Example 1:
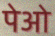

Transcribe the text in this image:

पेओ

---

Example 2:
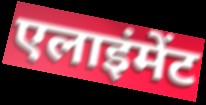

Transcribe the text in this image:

एलाइंमेंट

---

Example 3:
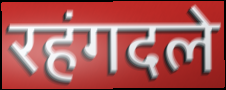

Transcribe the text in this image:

रहंगदले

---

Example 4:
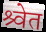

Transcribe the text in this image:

श्र्वेत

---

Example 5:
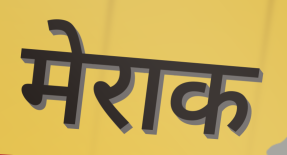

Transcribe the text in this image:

मेराक